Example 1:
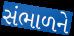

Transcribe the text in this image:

સંભાળને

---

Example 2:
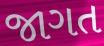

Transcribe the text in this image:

જાગત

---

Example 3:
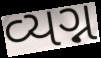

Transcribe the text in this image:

વ્યગ્ન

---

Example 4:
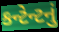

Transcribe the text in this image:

કન્ટેન્ટનું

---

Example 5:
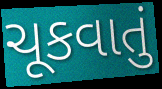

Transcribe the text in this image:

ચૂકવાતું